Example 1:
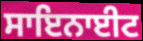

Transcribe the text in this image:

ਸਾਇਨਾਈਟ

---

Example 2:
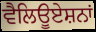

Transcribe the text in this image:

ਵੈਲਿਊਏਸ਼ਨਾਂ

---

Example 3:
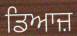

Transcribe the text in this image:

ਡਿਆਜ਼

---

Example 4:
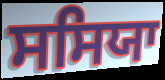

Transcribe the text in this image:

ਸਸਿਯਾ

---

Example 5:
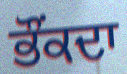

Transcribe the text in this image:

ਭੌਂਕਦਾ